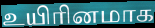
உயிரினமாக